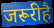
जरूरीहै